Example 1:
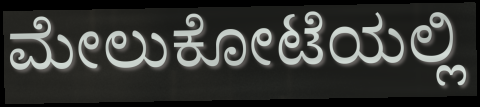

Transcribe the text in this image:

ಮೇಲುಕೋಟೆಯಲ್ಲಿ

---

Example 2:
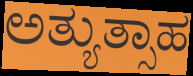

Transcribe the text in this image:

ಅತ್ಯುತ್ಸಾಹ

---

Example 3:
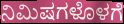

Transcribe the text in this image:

ನಿಮಿಷಗಳೊಳಗೆ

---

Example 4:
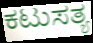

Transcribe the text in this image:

ಕಟುಸತ್ಯ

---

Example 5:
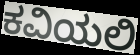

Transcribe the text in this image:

ಕವಿಯಲಿ